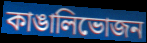
কাঙালিভোজন